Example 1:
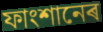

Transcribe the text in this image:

ফাংশানেৰ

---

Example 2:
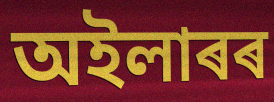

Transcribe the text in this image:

অইলাৰৰ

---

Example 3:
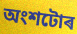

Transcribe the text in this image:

অংশটোৰ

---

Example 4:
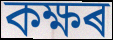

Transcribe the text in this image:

কক্ষৰ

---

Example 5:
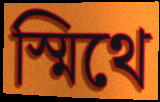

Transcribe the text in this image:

স্মিথে